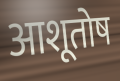
आशूतोष